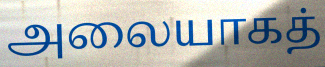
அலையாகத்